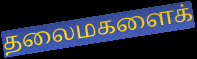
தலைமகளைக்